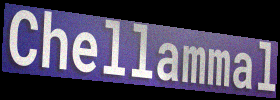
Chellammal